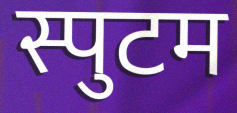
स्पुटम